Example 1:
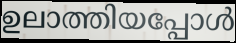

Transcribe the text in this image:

ഉലാത്തിയപ്പോൾ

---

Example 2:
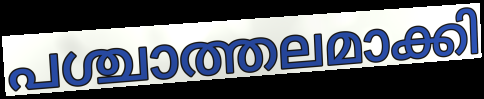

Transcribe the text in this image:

പശ്ചാത്തലമാക്കി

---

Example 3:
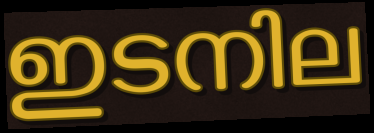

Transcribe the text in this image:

ഇടനില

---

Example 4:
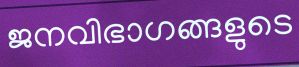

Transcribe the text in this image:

ജനവിഭാഗങ്ങളുടെ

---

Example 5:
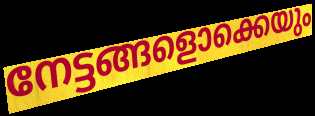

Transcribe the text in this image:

നേട്ടങ്ങളൊക്കെയും